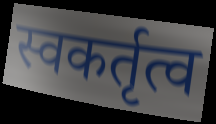
स्वकर्तृत्व